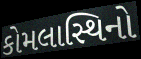
કોમલાસ્થિનો